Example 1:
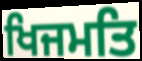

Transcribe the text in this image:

ਖਿਜਮਤਿ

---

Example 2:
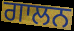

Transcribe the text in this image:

ਗਾਲਨ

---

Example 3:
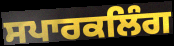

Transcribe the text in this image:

ਸਪਾਰਕਲਿੰਗ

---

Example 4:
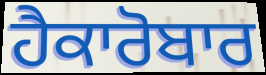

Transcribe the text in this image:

ਹੈਕਾਰੋਬਾਰ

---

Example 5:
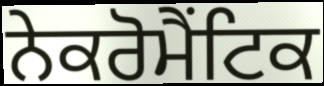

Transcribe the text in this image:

ਨੇਕਰੋਮੈਂਟਿਕ